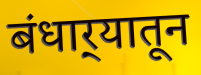
बंधार्यातून